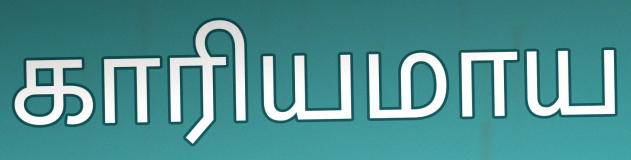
காரியமாய